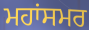
ਮਹਾਂਸਮਰ